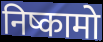
निष्कामो